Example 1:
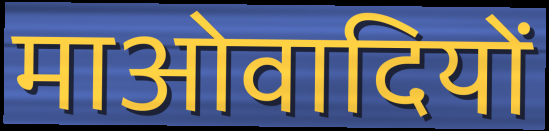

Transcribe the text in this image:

माओवादियों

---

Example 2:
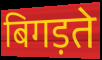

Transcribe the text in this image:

बिगड़ते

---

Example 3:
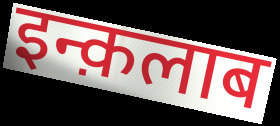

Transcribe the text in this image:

इन्क़लाब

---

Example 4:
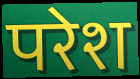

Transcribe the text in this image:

परेश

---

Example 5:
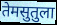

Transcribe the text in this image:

तेमसुतुला